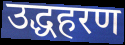
उद्धहरण